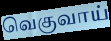
வெகுவாய்